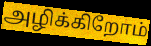
அழிக்கிறோம்